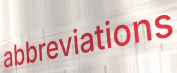
abbreviations